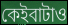
কেইবাটাও